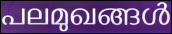
പലമുഖങ്ങൾ